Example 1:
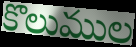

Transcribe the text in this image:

కొలుముల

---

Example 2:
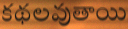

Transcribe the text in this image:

కథలవుతాయి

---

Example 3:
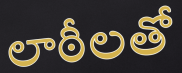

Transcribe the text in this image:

లాఠీలతో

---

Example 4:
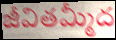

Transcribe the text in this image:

జీవితమ్మీద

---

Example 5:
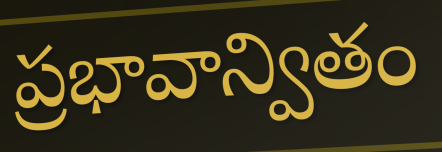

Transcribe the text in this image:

ప్రభావాన్వితం